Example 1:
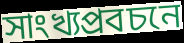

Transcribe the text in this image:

সাংখ্যপ্রবচনে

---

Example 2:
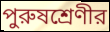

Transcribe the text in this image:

পুরুষশ্রেণীর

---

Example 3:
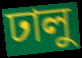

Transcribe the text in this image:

ঢালু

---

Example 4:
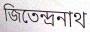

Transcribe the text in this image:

জিতেন্দ্রনাথ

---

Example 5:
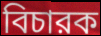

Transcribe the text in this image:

বিচারক